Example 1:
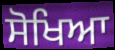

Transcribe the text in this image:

ਸੋਖਿਆ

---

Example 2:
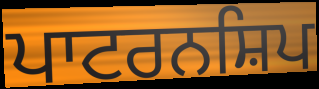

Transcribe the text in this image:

ਪਾਟਰਨਸ਼ਿਪ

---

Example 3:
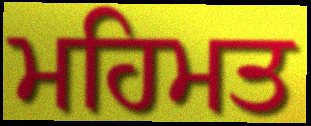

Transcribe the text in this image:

ਮਹਿਮਤ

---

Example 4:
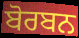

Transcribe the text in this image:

ਬੋਰਬਨ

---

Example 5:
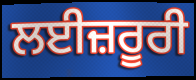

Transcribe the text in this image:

ਲਈਜ਼ਰੂਰੀ